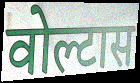
वोल्टास